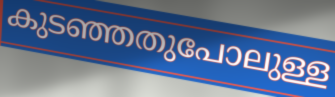
കുടഞ്ഞതുപോലുള്ള